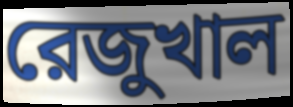
রেজুখাল